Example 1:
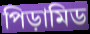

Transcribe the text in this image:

পিড়ামিড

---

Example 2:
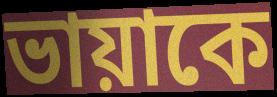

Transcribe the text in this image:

ভায়াকে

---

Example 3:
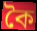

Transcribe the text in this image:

কৈ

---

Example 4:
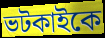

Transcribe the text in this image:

ভটকাইকে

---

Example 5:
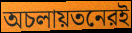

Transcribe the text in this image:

অচলায়তনেরই